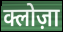
क्लोज़ा